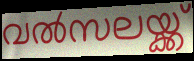
വൽസലയ്ക്ക്